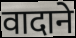
वादाने